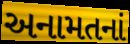
અનામતનાં